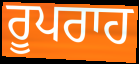
ਰੂਪਰਾਹ